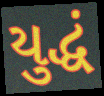
યુદ્ધં